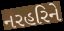
નરહરિને